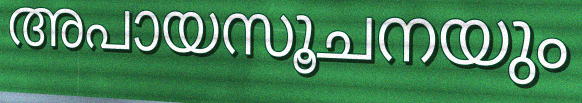
അപായസൂചനയും